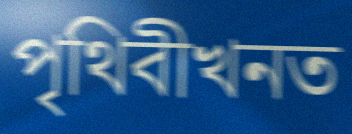
পৃথিবীখনত